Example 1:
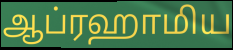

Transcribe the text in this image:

ஆப்ரஹாமிய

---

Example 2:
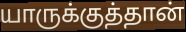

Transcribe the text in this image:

யாருக்குத்தான்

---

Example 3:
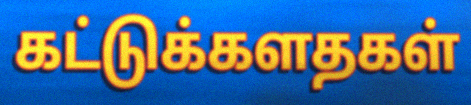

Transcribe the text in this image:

கட்டுக்களதகள்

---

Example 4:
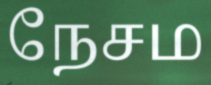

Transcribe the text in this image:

நேசம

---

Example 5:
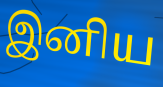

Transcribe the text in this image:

இனிய